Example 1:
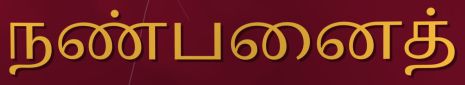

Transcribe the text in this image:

நண்பனைத்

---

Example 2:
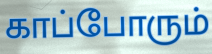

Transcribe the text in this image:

காப்போரும்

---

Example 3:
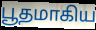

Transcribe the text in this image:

பூதமாகிய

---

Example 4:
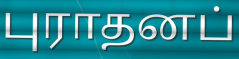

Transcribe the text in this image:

புராதனப்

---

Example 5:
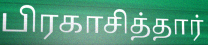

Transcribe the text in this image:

பிரகாசித்தார்